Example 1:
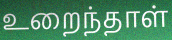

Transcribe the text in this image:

உறைந்தாள்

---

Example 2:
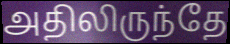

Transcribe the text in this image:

அதிலிருந்தே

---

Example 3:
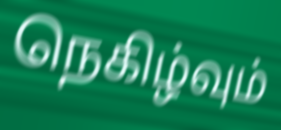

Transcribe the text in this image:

நெகிழ்வும்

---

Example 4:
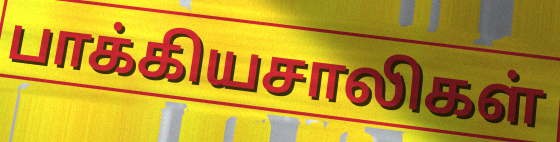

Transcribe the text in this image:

பாக்கியசாலிகள்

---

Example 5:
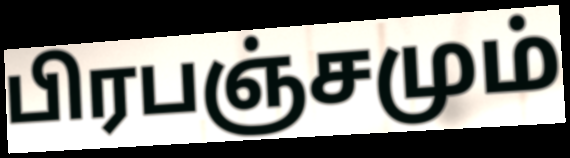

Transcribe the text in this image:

பிரபஞ்சமும்